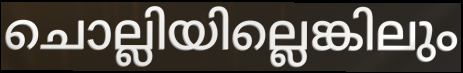
ചൊല്ലിയില്ലെങ്കിലും